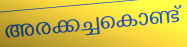
അരക്കച്ചകൊണ്ട്